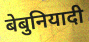
बेबुनियादी